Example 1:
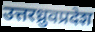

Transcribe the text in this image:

उत्तरध्रुवप्रदेश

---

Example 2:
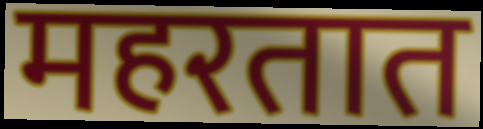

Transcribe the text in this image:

महरतात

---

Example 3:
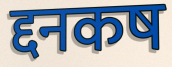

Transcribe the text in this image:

द्दनकष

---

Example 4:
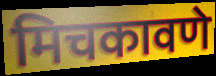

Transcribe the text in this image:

मिचकावणे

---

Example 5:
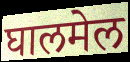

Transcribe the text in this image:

घालमेल